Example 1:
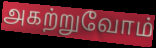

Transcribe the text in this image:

அகற்றுவோம்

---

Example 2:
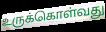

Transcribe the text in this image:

உருக்கொள்வது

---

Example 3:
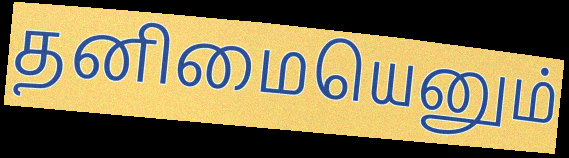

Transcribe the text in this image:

தனிமையெனும்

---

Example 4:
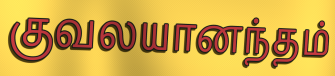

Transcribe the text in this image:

குவலயானந்தம்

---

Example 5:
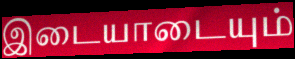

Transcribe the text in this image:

இடையாடையும்